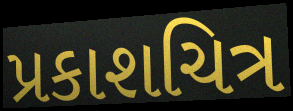
પ્રકાશચિત્ર